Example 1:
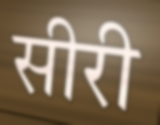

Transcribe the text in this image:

सीरी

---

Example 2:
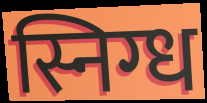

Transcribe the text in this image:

स्निग्ध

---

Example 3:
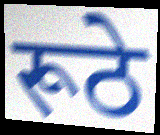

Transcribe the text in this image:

रूठे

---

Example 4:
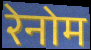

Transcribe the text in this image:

रेनोम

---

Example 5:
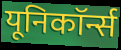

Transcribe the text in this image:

यूनिकॉर्न्स